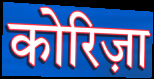
कोरिज़ा